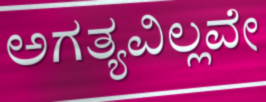
ಅಗತ್ಯವಿಲ್ಲವೇ